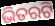
ଭିତରଟି